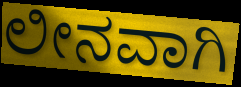
ಲೀನವಾಗಿ